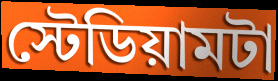
স্টেডিয়ামটা